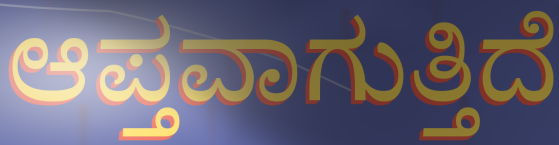
ಆಪ್ತವಾಗುತ್ತಿದೆ